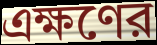
এক্ষণের